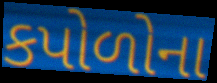
કપોળોના